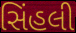
સિંહલી